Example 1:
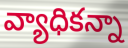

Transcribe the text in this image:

వ్యాధికన్నా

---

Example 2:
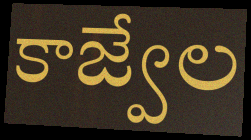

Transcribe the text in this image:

కాజ్వేల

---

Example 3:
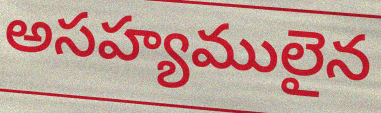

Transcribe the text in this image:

అసహ్యములైన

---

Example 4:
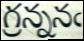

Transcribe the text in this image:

గ్రన్ననఁ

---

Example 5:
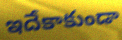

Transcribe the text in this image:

ఇదేకాకుండా